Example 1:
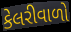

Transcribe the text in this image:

કેલરીવાળો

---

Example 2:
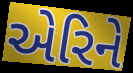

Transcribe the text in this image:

એરિને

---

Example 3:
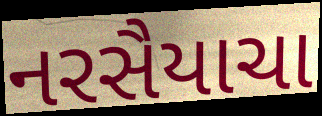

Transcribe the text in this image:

નરસૈયાચા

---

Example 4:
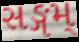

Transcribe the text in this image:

સઙ્ગમ્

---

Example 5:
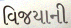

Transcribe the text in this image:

વિજયાની